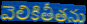
వెలికితీతను